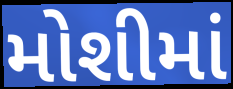
મોશીમાં